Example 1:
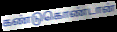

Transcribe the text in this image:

கண்டுகொண்டான்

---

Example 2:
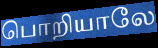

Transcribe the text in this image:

பொறியாலே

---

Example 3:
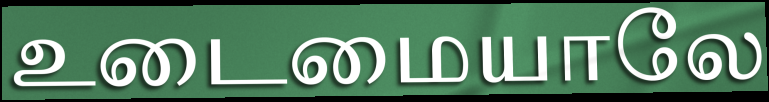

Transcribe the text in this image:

உடைமையாலே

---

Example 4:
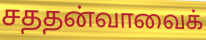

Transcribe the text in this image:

சததன்வாவைக்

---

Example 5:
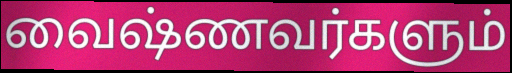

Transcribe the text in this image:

வைஷ்ணவர்களும்